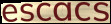
escacs